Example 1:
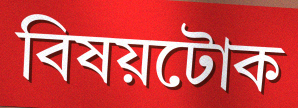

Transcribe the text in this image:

বিষয়টোক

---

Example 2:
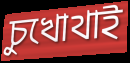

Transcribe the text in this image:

চুখোথাই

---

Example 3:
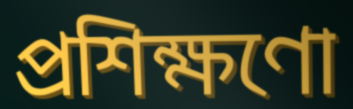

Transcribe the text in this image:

প্ৰশিক্ষণো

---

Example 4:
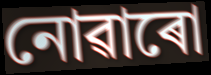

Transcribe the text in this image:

নোৱাৰো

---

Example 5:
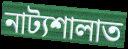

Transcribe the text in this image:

নাট্যশালাত